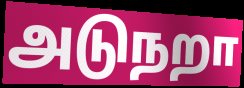
அடுநறா